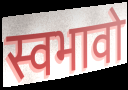
स्वभावो